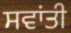
ਸਵਾਂਤੀ